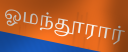
ஓமந்தூரார்